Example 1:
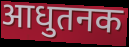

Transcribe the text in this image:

आधुतनक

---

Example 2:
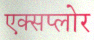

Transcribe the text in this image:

एक्सप्लोर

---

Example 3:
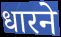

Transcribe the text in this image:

धारने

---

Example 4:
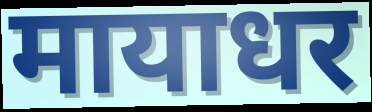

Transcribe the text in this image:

मायाधर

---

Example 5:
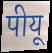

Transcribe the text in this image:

पीयू